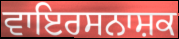
ਵਾਇਰਸਨਾਸ਼ਕ